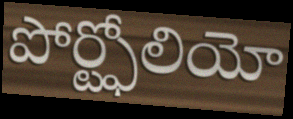
పోర్ట్ఫోలియో